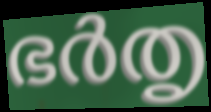
ഭർതൃ